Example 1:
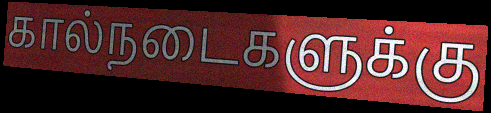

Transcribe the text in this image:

கால்நடைகளுக்கு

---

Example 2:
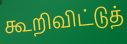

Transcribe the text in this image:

கூறிவிட்டுத்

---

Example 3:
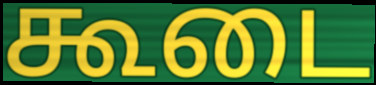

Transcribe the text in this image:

கூடை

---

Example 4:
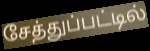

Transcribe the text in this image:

சேத்துப்பட்டில்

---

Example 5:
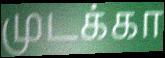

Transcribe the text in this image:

முடக்கா